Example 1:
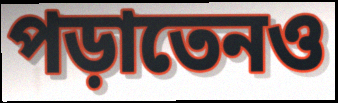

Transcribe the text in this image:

পড়াতেনও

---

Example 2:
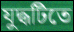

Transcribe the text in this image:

যুদ্ধটিতে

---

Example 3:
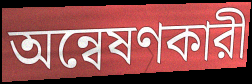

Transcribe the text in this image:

অন্বেষণকারী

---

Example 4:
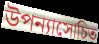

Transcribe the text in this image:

উপন্যাসোচিত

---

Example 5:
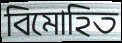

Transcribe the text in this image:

বিমোহিত